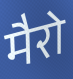
मैरो